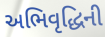
અભિવૃદ્ધિની